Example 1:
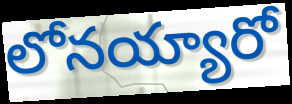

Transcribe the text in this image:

లోనయ్యారో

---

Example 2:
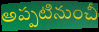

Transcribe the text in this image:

అప్పటినుంచీ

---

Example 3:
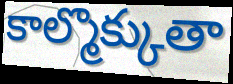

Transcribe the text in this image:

కాల్మొక్కుతా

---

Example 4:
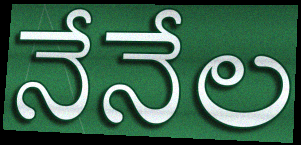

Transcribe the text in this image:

నేనేల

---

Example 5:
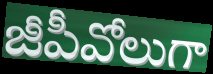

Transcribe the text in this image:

జీపీవోలుగా